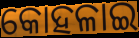
କୋହଳାଇ